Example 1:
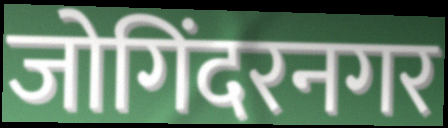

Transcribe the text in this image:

जोगिंदरनगर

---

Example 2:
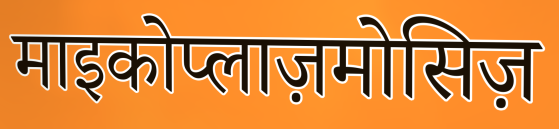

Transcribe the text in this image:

माइकोप्लाज़मोसिज़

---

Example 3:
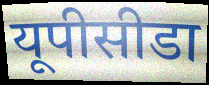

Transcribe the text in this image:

यूपीसीडा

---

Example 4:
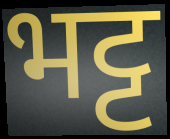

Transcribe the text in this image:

भट्ट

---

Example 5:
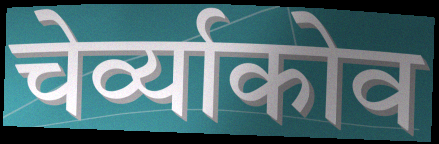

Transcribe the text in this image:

चेर्व्याकोव